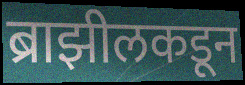
ब्राझीलकडून